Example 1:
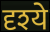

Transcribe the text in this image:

दृश्‍ये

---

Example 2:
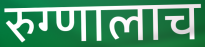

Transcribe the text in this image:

रुग्णालाच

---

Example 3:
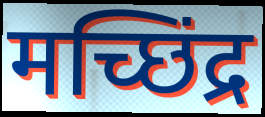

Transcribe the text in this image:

मच्छिंद्र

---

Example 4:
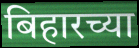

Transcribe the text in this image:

बिहारच्या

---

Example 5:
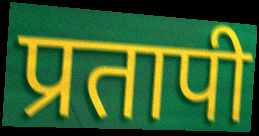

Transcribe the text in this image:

प्रतापी